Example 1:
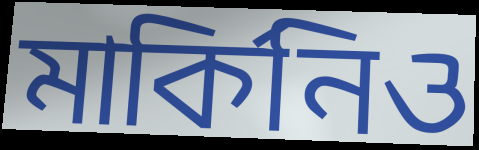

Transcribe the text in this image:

মার্কিনিও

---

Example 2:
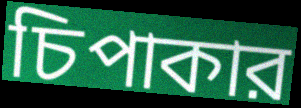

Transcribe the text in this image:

চিপাকার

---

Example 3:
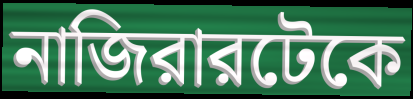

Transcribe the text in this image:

নাজিরারটেকে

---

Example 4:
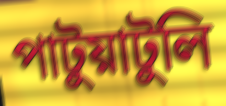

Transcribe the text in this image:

পাটুয়াটুলি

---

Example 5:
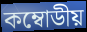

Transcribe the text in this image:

কম্বোডীয়